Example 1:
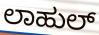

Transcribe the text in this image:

ಲಾಹುಲ್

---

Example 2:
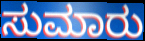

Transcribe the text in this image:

ಸುಮಾರು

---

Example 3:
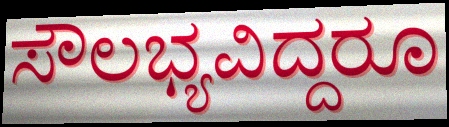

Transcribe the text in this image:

ಸೌಲಭ್ಯವಿದ್ದರೂ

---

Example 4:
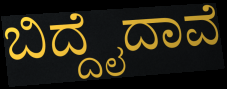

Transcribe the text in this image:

ಬಿದ್ದೈದಾವೆ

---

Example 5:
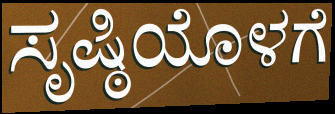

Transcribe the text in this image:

ಸೃಷ್ಠಿಯೊಳಗೆ